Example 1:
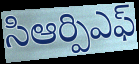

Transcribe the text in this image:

సిఆర్పిఎఫ్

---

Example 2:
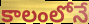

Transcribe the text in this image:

కాలంలోనే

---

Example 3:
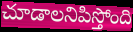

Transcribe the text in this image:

చూడాలనిపిస్తోంది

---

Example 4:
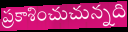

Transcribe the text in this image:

ప్రకాశించుచున్నది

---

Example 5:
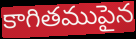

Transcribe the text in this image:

కాగితముపైన